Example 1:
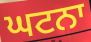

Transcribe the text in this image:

ਘਟਨਾ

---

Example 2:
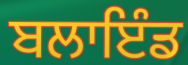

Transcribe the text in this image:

ਬਲਾਇੰਡ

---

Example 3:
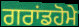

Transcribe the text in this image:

ਗਰਾਂਡਹੋਮੇ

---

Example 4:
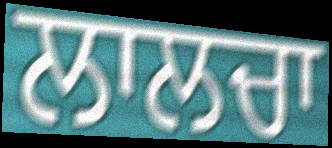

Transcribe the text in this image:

ਲਾਲਚਾ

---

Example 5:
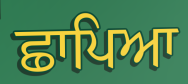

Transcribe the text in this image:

ਛਾਪਿਆ